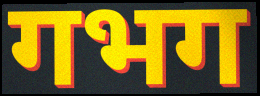
गभग